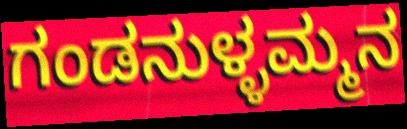
ಗಂಡನುಳ್ಳಮ್ಮನ